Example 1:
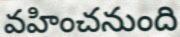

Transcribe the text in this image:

వహించనుంది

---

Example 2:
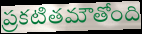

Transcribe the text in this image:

ప్రకటితమౌతోంది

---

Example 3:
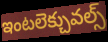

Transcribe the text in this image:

ఇంటలెక్చువల్స్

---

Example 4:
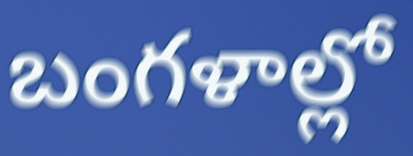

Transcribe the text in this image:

బంగళాల్లో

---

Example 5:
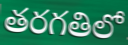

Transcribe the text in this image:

తరగతిలో